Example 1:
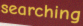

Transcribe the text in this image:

searching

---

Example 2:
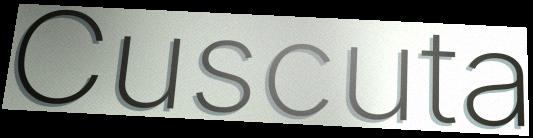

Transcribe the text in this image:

Cuscuta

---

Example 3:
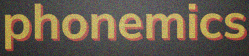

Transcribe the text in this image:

phonemics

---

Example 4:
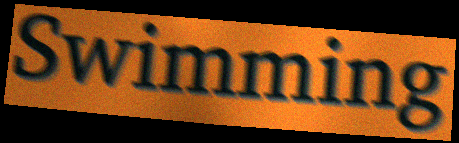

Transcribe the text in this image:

Swimming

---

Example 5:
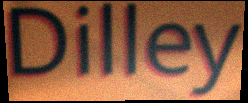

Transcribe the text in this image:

Dilley